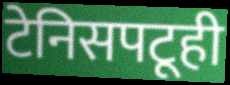
टेनिसपटूही